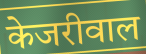
केजरीवाल